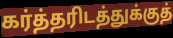
கர்த்தரிடத்துக்குத்